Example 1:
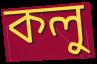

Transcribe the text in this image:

কলু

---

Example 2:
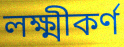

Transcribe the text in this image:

লক্ষ্মীকর্ণ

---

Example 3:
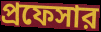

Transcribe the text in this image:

প্রফেসার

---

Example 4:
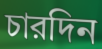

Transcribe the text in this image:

চারদিন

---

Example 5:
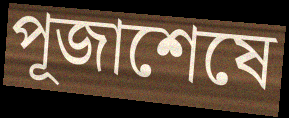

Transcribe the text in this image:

পূজাশেষে